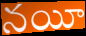
నయీ